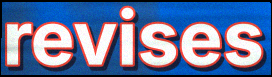
revises